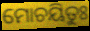
ମୋଚୟିତୁଃ